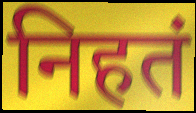
निहतं